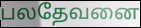
பலதேவனை